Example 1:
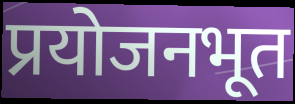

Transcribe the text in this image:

प्रयोजनभूत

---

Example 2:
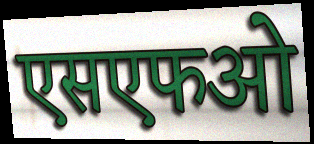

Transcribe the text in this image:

एसएफओ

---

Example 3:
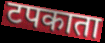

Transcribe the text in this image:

टपकाता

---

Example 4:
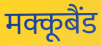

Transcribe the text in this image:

मक्कूबैंड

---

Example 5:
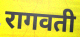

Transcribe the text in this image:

रागवती